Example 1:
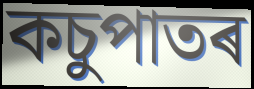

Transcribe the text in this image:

কচুপাতৰ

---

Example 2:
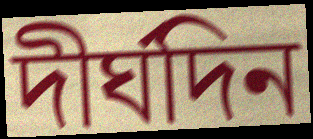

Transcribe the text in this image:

দীৰ্ঘদিন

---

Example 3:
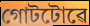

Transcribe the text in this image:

গোটটোৱে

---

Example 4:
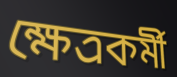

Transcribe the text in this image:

ক্ষেত্ৰকৰ্মী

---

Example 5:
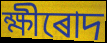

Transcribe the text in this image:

ক্ষীৰোদ